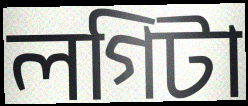
লগিটা